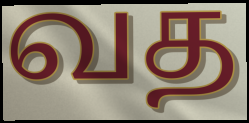
வத